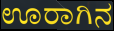
ಊರಾಗಿನ